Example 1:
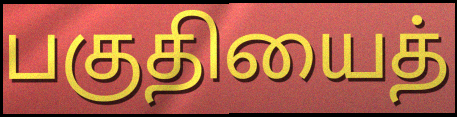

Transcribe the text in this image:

பகுதியைத்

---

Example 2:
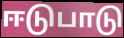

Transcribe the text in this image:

ஈடுபாடு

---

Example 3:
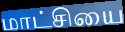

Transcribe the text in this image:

மாட்சியை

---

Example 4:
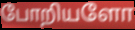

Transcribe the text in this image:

போறியளோ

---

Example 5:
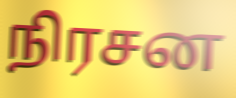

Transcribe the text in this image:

நிரசன